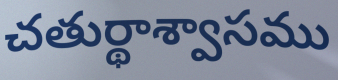
చతుర్థాశ్వాసము